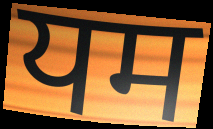
यम